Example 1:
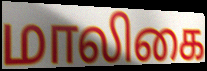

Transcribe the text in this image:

மாலிகை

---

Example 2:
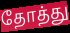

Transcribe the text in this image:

தோத்து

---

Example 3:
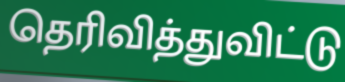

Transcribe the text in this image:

தெரிவித்துவிட்டு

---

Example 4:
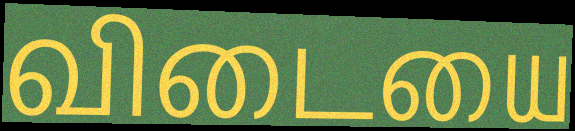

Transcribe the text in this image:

விடையை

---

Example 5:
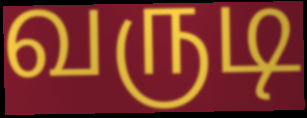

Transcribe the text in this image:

வருடி